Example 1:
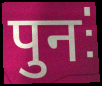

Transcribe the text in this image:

पुनः॑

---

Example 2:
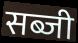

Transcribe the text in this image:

सब्जी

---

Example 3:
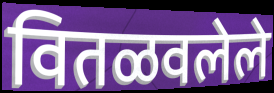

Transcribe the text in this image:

वितळवलेले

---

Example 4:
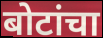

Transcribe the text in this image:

बोटांचा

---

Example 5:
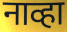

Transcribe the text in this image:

नाव्हा